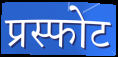
प्रस्फोट